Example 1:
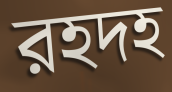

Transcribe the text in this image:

রহদহ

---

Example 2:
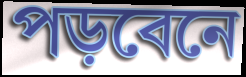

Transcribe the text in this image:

পড়বেনে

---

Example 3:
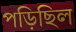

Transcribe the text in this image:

পড়িছিল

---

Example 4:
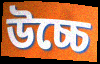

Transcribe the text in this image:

উচ্চে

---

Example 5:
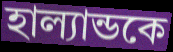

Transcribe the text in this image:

হাল্যান্ডকে